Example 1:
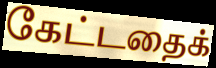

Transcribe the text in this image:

கேட்டதைக்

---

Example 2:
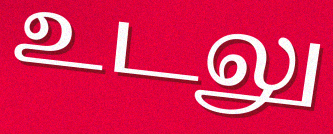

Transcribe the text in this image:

உடலு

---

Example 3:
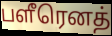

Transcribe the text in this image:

பளீரெனத்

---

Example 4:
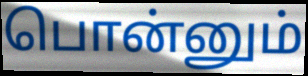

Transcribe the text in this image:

பொன்னும்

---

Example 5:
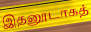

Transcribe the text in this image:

இதனூடாகத்